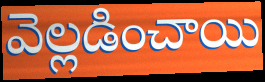
వెల్లడించాయి